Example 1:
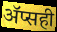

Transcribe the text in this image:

ॲप्सही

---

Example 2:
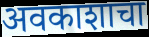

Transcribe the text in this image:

अवकाशाचा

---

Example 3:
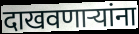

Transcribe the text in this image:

दाखवणाऱ्यांना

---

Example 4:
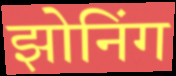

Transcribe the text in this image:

झोनिंग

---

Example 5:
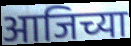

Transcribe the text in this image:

आजिच्या